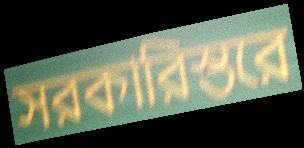
সরকারিস্তরে